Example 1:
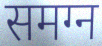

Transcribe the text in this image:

समग्न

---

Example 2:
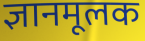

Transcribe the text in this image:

ज्ञानमूलक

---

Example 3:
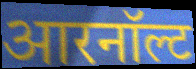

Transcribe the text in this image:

आरनॉल्ट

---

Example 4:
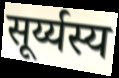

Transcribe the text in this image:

सूर्य्यस्य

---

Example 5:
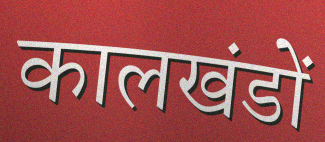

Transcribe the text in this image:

कालखंडों